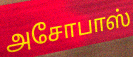
அசோபாஸ்